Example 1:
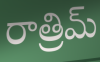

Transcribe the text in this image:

రాత్రిమ్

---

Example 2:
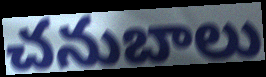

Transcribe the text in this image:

చనుబాలు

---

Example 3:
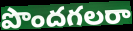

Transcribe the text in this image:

పొందగలరా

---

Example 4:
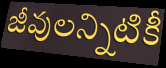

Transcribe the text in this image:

జీవులన్నిటికీ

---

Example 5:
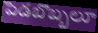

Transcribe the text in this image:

పెడబొబ్బలూ